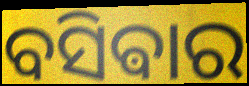
ବସିଵାର